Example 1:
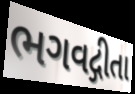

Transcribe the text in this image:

ભગવદ્ગીતા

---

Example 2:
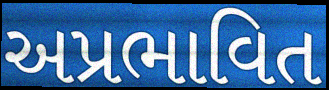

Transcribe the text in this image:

અપ્રભાવિત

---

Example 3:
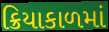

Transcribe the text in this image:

ક્રિયાકાળમાં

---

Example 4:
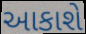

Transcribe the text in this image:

આકાશે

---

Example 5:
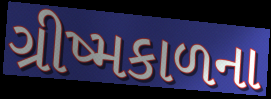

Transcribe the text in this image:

ગ્રીષ્મકાળના